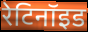
रेटिनॉइड